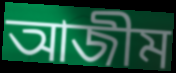
আজীম